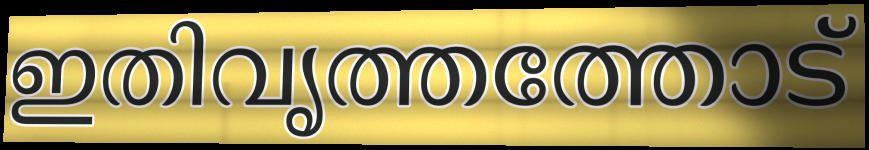
ഇതിവൃത്തത്തോട്